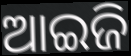
ଆଇଜି